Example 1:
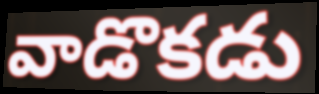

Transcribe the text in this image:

వాడొకడు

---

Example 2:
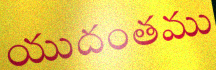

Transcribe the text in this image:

యుదంతము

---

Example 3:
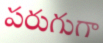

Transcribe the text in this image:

పరుగుగా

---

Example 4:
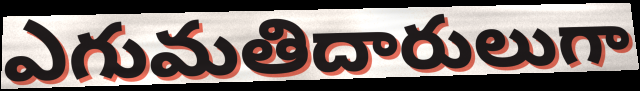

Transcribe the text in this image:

ఎగుమతిదారులుగా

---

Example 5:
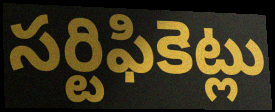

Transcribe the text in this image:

సర్టిఫికెట్లు